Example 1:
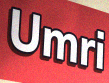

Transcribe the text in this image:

Umri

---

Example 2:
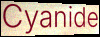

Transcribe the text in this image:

Cyanide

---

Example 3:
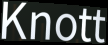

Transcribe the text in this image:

Knott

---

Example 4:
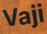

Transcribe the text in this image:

Vaji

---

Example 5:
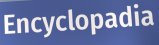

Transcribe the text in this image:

Encyclopadia